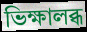
ভিক্ষালব্ধ